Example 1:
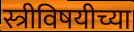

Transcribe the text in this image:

स्त्रीविषयीच्या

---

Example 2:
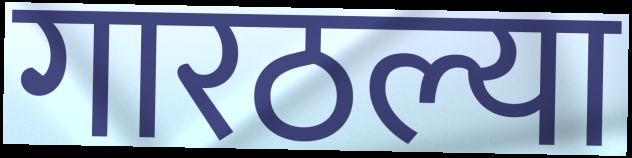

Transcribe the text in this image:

गारठल्या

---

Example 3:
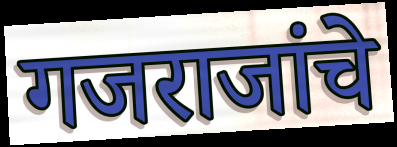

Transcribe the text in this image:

गजराजांचे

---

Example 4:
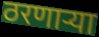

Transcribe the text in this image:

ठरणाऱ्या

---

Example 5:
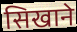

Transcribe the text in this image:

सिखाने